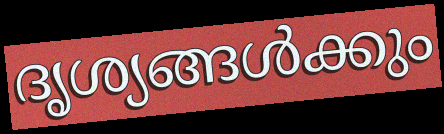
ദൃശ്യങ്ങൾക്കും